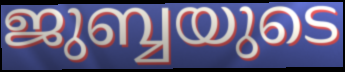
ജുബ്ബയുടെ